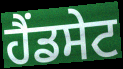
ਹੈਂਡਸੇਟ